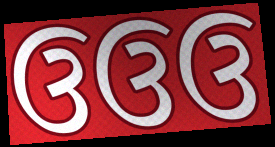
ઉઉઉ